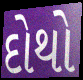
દોથો